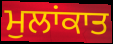
ਮੁਲਾਂਕਾਤ